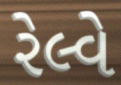
રેલ્વે